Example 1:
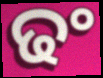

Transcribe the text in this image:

ଢଂ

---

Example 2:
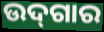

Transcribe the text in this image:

ଉଦ୍‌ଗାର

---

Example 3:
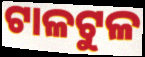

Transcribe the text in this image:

ଟାଳଟୁଳ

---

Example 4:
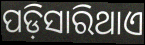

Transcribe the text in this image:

ପଡ଼ିସାରିଥାଏ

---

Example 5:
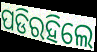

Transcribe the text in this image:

ପଡିରହିଲେ